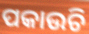
ପକାଉଚି